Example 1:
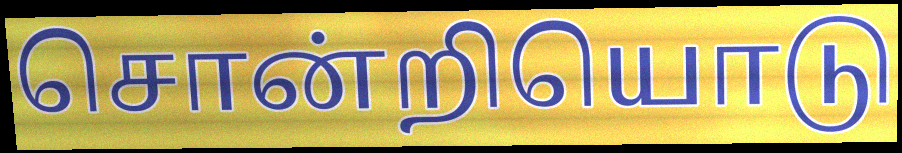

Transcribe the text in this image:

சொன்றியொடு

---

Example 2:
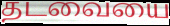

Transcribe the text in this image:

தடவையை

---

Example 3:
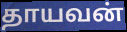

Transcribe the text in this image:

தாயவன்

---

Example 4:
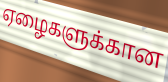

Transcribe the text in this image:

ஏழைகளுக்கான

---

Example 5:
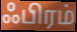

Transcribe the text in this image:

ஃபிரம்